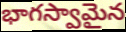
భాగస్వామైన